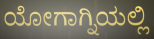
ಯೋಗಾಗ್ನಿಯಲ್ಲಿ